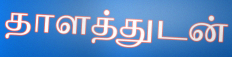
தாளத்துடன்